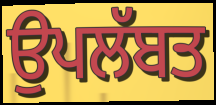
ਉਪਲੱਬਤ